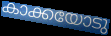
കാക്കയോടു